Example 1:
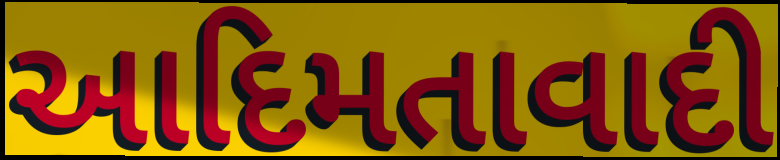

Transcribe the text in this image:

આદિમતાવાદી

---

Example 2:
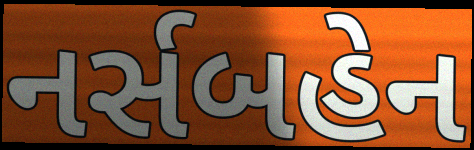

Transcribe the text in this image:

નર્સબહેન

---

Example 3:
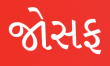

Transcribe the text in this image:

જોસફ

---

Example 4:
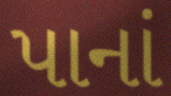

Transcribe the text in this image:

પાનાં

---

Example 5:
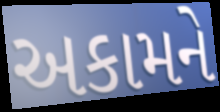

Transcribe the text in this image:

અકામને